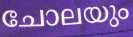
ചോലയും